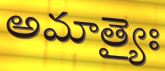
అమాత్యైః